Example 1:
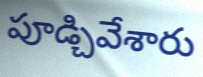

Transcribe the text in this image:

పూడ్చివేశారు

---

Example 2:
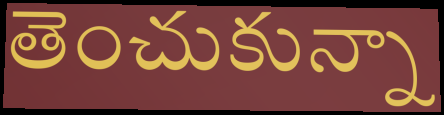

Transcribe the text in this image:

తెంచుకున్నా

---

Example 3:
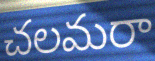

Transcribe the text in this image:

చలమరా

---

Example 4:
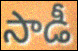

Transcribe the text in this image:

సాడీ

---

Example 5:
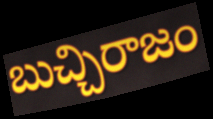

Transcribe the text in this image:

బుచ్చిరాజం